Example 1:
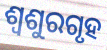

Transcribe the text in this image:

ଶ୍ୱଶୁରଗୃହ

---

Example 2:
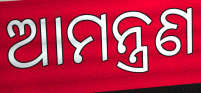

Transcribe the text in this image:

ଆମନ୍ତ୍ରଣ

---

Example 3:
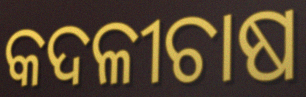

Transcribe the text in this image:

କଦଳୀଚାଷ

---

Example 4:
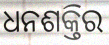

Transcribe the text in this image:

ଧନଶକ୍ତିର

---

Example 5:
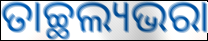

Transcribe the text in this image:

ତାଚ୍ଛଲ୍ୟଭରା